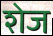
शेज